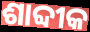
ଶାବ୍ଦୀକ